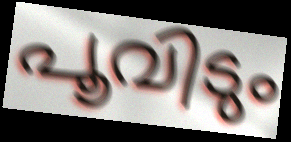
പൂവിടും